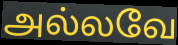
அல்லவே